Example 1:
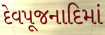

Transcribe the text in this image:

દેવપૂજનાદિમાં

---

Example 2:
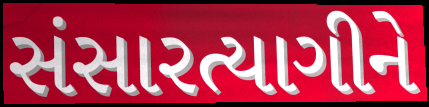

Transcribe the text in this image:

સંસારત્યાગીને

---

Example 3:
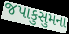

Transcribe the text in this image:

જપાકુસુમના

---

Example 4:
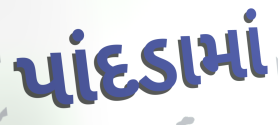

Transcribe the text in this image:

પાંદડામાં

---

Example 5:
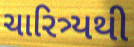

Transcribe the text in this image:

ચારિત્ર્યથી